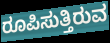
ರೂಪಿಸುತ್ತಿರುವ